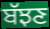
ਬੱਝਣ